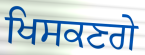
ਖਿਸਕਣਗੇ